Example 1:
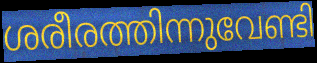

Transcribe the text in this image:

ശരീരത്തിന്നുവേണ്ടി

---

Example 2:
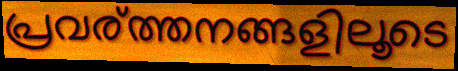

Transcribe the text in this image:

പ്രവര്ത്തനങ്ങളിലൂടെ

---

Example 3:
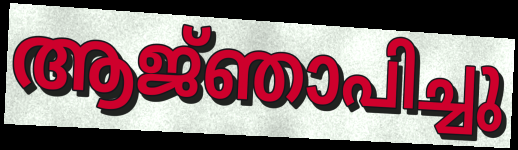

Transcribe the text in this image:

ആജ്‌ഞാപിച്ചു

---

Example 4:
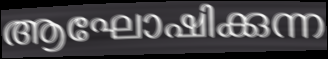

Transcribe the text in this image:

ആഘോഷിക്കുന്ന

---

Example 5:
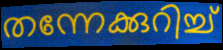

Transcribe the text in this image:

തന്നേക്കുറിച്ച്